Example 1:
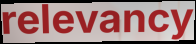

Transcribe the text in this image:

relevancy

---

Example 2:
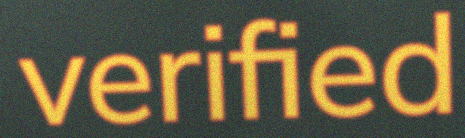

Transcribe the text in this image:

verified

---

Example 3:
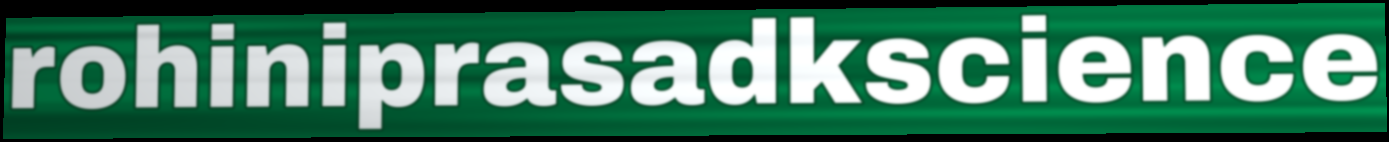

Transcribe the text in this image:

rohiniprasadkscience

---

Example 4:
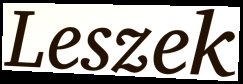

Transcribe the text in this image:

Leszek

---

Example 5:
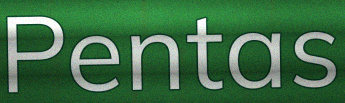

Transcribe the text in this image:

Pentas